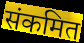
संकमित